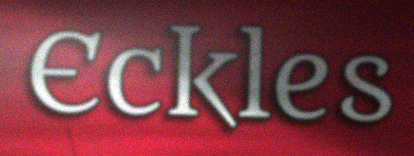
Eckles